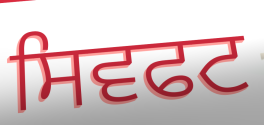
ਸਿਵਫਟ